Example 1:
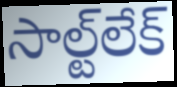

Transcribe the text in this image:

సాల్ట్‌లేక్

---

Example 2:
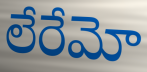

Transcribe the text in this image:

లేరేమో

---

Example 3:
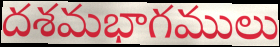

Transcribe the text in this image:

దశమభాగములు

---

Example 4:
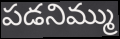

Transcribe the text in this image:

పడనిమ్ము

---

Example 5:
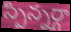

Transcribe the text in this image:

స్పిన్నర్గా